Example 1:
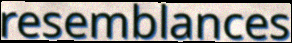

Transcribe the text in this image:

resemblances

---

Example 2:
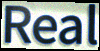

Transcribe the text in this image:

Real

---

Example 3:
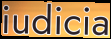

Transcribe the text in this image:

iudicia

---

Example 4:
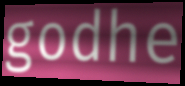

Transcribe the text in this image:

godhe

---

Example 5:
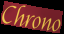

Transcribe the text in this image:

Chrono